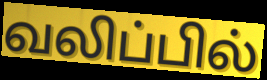
வலிப்பில்